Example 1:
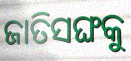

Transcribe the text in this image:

ଜାତିସଙ୍ଘକୁ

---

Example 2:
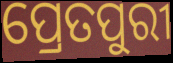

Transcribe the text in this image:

ପ୍ରେତପୁରୀ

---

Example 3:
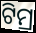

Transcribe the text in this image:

ଟିମ୍ର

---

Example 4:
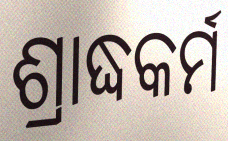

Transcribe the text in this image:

ଶ୍ରାଦ୍ଧକର୍ମ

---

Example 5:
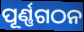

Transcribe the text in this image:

ପୂର୍ଣ୍ଣଗଠନ